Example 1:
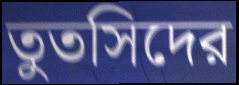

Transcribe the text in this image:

তুতসিদের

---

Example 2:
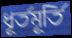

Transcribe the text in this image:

ধূর্তমূর্তি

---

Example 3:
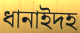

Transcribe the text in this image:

ধানাইদহ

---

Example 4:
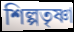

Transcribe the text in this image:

শিল্পতৃষ্ণা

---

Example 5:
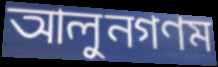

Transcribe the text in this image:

আলুনগণম